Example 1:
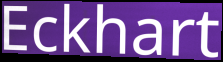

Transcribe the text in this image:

Eckhart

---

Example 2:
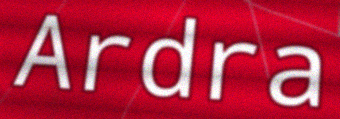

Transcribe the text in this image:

Ardra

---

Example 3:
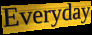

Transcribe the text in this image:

Everyday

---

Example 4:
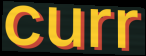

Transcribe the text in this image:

curr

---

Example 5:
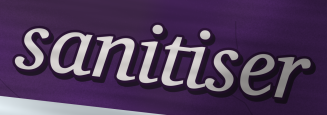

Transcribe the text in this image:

sanitiser